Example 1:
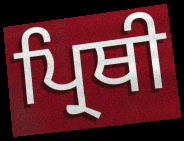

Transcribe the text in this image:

ਪ੍ਰਿਥੀ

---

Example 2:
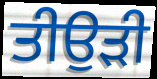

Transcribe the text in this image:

ਤੀਉੜੀ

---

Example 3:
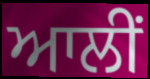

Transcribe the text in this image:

ਆਲੀਂ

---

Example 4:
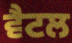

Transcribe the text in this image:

ਵੈਟਲ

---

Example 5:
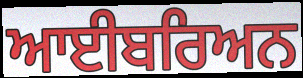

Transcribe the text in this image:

ਆਈਬਰਿਅਨ